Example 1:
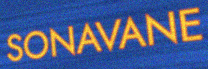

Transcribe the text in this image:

SONAVANE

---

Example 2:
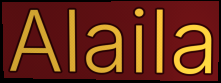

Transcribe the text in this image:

Alaila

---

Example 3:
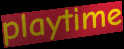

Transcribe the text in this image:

playtime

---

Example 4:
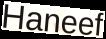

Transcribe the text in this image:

Haneef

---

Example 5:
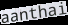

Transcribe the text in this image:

aanthai